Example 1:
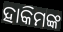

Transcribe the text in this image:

ହାକିମଙ୍କ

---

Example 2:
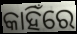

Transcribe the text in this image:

କାହିଁରେ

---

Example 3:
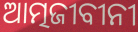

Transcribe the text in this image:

ଆତ୍ମଜୀବୀନୀ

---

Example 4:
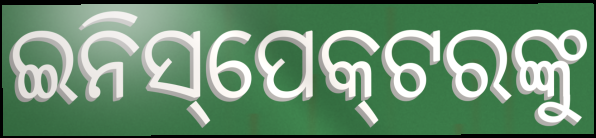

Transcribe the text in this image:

ଇନିସ୍‌ପେକ୍‍ଟରଙ୍କୁ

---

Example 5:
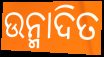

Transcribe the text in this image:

ଉନ୍ମାଦିତ